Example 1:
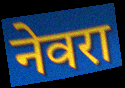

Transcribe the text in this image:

नेवरा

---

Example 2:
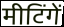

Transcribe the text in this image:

मीटिंगें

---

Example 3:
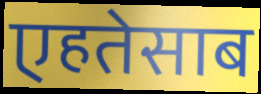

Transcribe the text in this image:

एहतेसाब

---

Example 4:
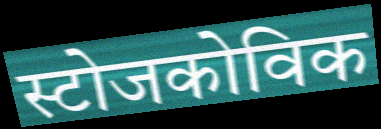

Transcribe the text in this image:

स्टोजकोविक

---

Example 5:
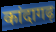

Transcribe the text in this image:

कांदागढ़